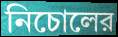
নিচোলের